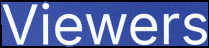
Viewers